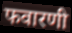
फवारणी